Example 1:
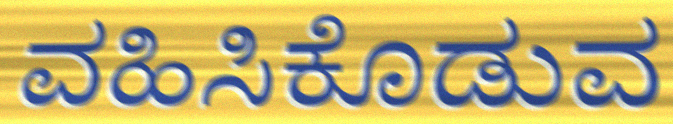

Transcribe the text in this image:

ವಹಿಸಿಕೊಡುವ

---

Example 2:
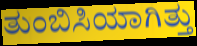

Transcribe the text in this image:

ತುಂಬಿಸಿಯಾಗಿತ್ತು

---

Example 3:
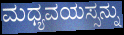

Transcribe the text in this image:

ಮಧ್ಯವಯಸ್ಸನ್ನು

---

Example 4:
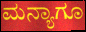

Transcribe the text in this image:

ಮನ್ಯಾಗೂ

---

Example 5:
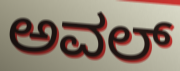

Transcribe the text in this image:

ಅವಲ್